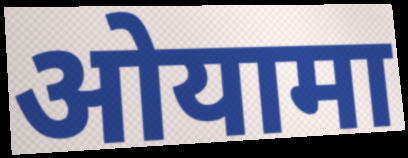
ओयामा